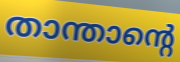
താന്താന്റെ